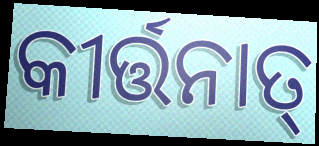
କୀର୍ତ୍ତନାତ୍